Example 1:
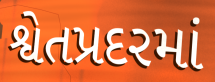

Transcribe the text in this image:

શ્વેતપ્રદરમાં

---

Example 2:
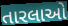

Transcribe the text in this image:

તારલાઓ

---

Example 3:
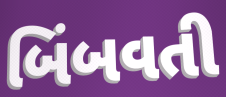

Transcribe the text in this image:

બિંબવતી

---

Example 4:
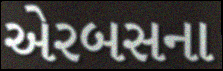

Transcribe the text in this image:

એરબસના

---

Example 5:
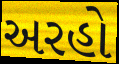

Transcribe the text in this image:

અરહો